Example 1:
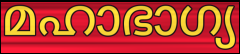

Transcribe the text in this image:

മഹാഭാഗ്യ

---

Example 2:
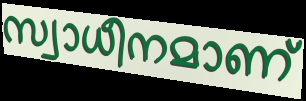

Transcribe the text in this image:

സ്വാധീനമാണ്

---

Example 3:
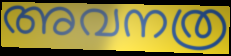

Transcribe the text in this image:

അവനത്ര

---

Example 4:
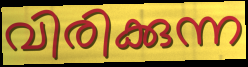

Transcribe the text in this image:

വിരിക്കുന്ന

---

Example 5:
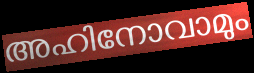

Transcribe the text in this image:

അഹിനോവാമും